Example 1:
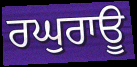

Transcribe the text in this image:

ਰਘੁਰਾਊ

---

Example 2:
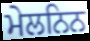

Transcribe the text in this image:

ਮੇਲਨਿਨ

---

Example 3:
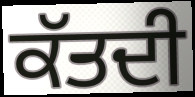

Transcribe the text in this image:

ਕੱਤਦੀ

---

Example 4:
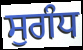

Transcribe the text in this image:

ਸੁਗੰਧ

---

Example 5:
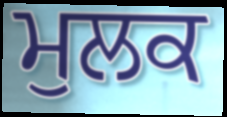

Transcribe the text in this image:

ਮੁਲਕ